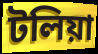
টলিয়া